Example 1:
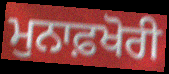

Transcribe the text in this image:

ਮੁਨਾਫ਼ਖੋਰੀ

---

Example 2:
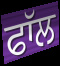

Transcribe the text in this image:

ਫਾੱਲ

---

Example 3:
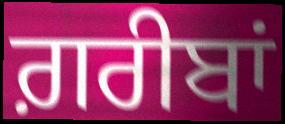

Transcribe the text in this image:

ਗ਼ਰੀਬਾਂ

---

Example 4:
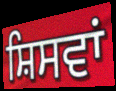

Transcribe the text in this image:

ਸ਼ਿਸਵਾਂ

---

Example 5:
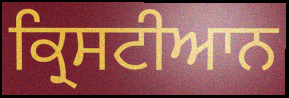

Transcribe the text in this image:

ਕ੍ਰਿਸਟੀਆਨ